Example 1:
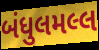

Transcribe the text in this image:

બંધુલમલ્લ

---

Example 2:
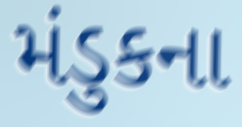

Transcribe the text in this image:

મંડુકના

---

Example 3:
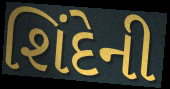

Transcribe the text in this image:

શિંદેની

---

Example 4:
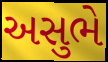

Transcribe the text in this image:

અસુભે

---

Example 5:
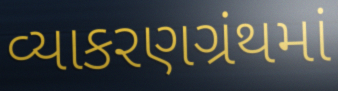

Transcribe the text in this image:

વ્યાકરણગ્રંથમાં